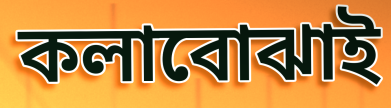
কলাবোঝাই